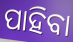
ପାହିବା